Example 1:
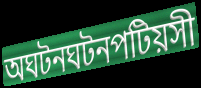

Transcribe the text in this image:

অঘটনঘটনপটিয়সী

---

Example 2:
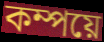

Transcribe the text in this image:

কম্পয়ে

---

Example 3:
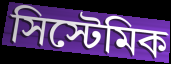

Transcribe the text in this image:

সিস্টেমিক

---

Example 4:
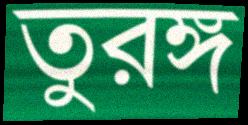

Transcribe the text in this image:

তুরঙ্গ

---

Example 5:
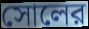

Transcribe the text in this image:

সোলের